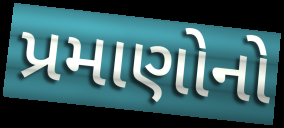
પ્રમાણોનો